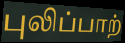
புலிப்பாற்